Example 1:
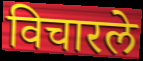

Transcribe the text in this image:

विचारले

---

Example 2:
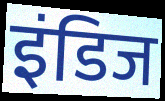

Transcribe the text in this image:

इंडिज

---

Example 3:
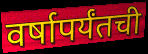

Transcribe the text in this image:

वर्षापर्यंतची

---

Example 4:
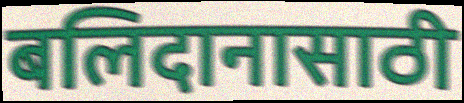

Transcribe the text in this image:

बलिदानासाठी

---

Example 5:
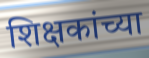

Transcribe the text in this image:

शिक्षकांच्‍या